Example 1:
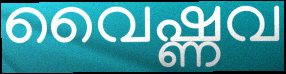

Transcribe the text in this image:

വൈഷ്ണവ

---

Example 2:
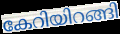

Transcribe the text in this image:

കേറിയിറങ്ങി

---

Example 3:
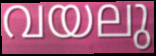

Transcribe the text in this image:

വയലു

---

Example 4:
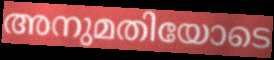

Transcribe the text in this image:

അനുമതിയോടെ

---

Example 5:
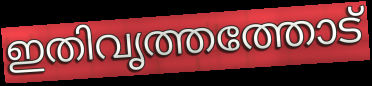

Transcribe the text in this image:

ഇതിവൃത്തത്തോട്